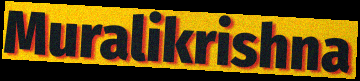
Muralikrishna